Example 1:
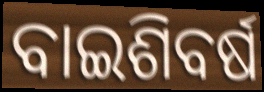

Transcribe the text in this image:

ବାଇଶିବର୍ଷ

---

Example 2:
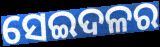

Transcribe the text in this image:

ସେଇଦଳର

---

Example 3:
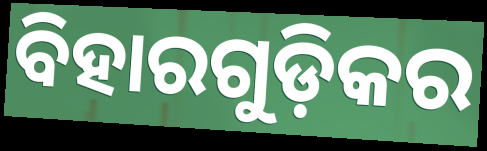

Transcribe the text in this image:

ବିହାରଗୁଡ଼ିକର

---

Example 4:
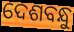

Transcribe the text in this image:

ଦେଶବନ୍ଧୁ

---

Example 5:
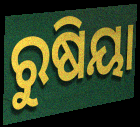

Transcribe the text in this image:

ରୁଷିୟା